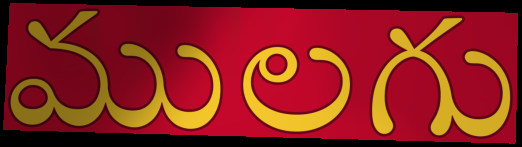
ములగు